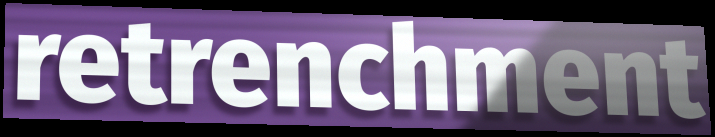
retrenchment